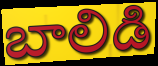
బాలిడి